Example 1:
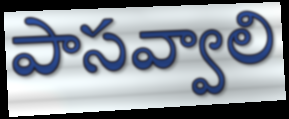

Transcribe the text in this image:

పాసవ్వాలి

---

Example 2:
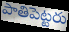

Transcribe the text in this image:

పాతిపెట్టరు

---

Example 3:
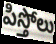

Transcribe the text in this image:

పిస్తోలు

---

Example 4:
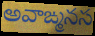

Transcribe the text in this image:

అవాఙ్మనస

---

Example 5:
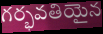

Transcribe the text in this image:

గర్భవతియైన